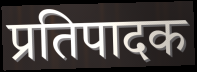
प्रतिपादक